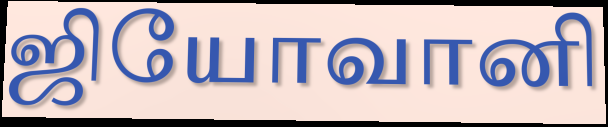
ஜியோவானி